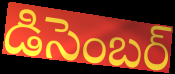
డిసెంబర్